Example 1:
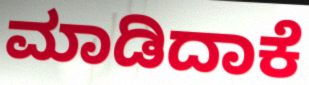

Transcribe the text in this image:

ಮಾಡಿದಾಕೆ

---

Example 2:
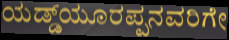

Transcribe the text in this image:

ಯಡ್ಡ್‌ಯೂರಪ್ಪನವರಿಗೇ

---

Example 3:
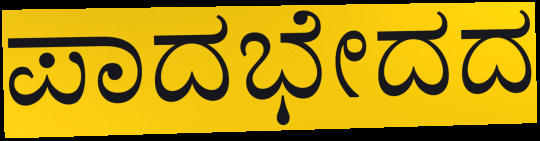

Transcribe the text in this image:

ಪಾದಭೇದದ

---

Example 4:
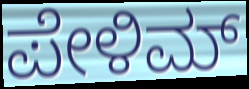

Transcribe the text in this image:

ಪೇಳಿಮ್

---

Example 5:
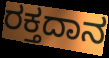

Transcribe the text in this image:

ರಕ್ತದಾನ